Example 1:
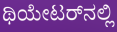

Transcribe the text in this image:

ಥಿಯೇಟರ್‌ನಲ್ಲಿ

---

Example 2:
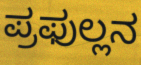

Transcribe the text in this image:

ಪ್ರಫುಲ್ಲನ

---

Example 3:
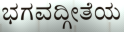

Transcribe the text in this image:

ಭಗವದ್ಗೀತೆಯ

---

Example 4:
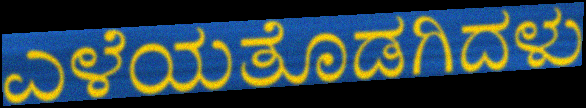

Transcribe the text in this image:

ಎಳೆಯತೊಡಗಿದಳು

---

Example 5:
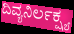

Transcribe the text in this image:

ದಿವ್ಯನಿರ್ಲಕ್ಷ್ಯ